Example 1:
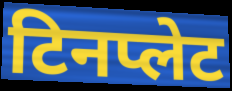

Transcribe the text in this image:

टिनप्लेट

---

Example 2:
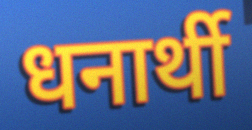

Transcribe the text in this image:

धनार्थी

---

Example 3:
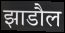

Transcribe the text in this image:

झाडौल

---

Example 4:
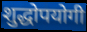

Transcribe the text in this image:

शुद्धोपयोगी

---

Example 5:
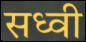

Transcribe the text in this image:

सध्वी